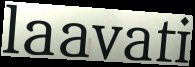
laavati